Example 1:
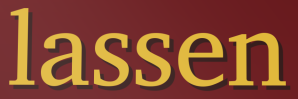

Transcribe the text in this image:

lassen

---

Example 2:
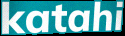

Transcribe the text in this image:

katahi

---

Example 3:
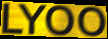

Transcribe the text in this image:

LYOO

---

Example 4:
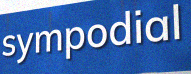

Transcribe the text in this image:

sympodial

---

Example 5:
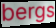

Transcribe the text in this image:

bergs